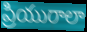
ప్రియురాలా